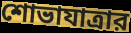
শোভাযাত্রার